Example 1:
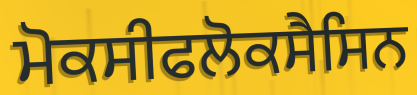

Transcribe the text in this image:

ਮੋਕਸੀਫਲੋਕਸੈਸਿਨ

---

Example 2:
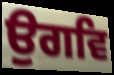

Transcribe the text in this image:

ਉਗਵਿ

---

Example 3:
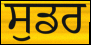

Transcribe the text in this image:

ਸੁਡਰ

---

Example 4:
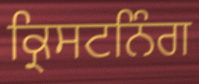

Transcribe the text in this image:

ਕ੍ਰਿਸਟਨਿੰਗ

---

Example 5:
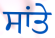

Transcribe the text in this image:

ਸਾਂਤੇ